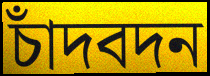
চাঁদবদন